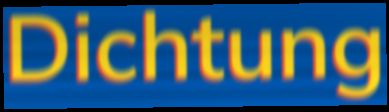
Dichtung